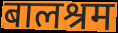
बालश्रम